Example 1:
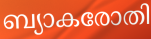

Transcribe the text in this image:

ബ്യാകരോതി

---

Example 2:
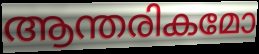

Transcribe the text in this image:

ആന്തരികമോ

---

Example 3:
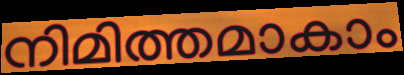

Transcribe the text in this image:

നിമിത്തമാകാം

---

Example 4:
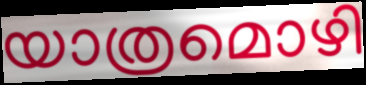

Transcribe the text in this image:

യാത്രമൊഴി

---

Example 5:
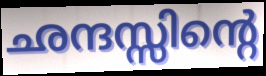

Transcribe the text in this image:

ഛന്ദസ്സിന്റെ